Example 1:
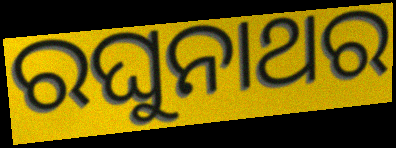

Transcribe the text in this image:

ରଘୁନାଥର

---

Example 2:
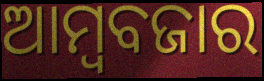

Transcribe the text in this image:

ଆମ୍ୱବଜାର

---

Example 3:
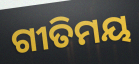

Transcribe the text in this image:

ଗୀତିମୟ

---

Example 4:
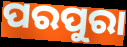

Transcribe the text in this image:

ପରପୁରା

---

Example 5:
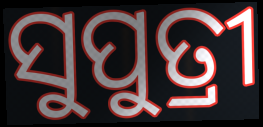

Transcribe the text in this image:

ସୁପୁତ୍ରୀ